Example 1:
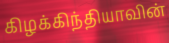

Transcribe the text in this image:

கிழக்கிந்தியாவின்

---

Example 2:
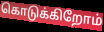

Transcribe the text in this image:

கொடுக்கிறோம்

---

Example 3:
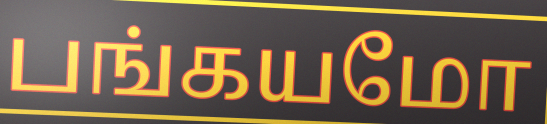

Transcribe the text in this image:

பங்கயமோ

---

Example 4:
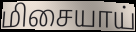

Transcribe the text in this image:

மிசையாய்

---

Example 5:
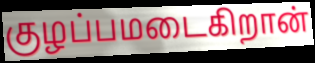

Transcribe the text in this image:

குழப்பமடைகிறான்